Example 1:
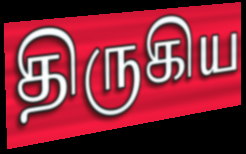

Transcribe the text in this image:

திருகிய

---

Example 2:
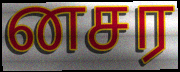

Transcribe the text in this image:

னசர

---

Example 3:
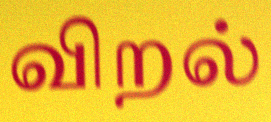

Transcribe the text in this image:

விறல்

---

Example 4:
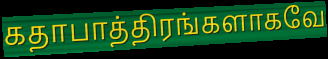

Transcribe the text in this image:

கதாபாத்திரங்களாகவே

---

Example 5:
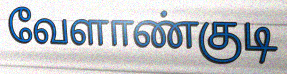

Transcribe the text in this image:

வேளாண்குடி